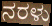
ನರಳು